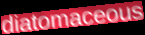
diatomaceous